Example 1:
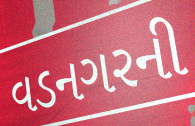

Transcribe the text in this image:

વડનગરની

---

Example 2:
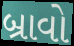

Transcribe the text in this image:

બ્રાવો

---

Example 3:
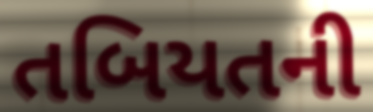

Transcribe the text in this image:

તબિયતની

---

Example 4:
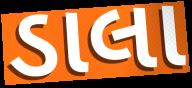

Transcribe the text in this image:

ડાલા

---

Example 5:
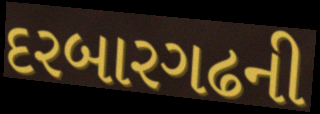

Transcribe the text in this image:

દરબારગઢની